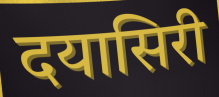
दयासिरी